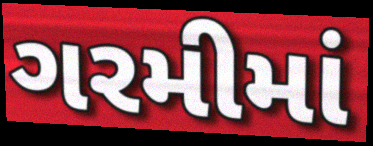
ગરમીમાં